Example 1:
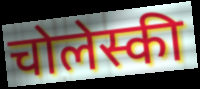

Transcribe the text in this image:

चोलेस्की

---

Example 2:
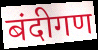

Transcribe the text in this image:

बंदीगण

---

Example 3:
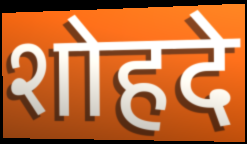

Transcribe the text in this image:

शोहदे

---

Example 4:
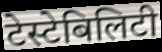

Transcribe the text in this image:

टेस्टेबिलिटी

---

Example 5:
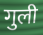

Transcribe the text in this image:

गुली